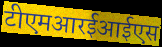
टीएमआरईआईएस